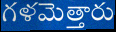
గళమెత్తారు